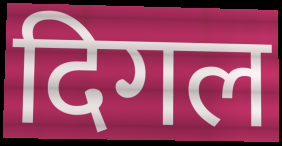
दिगल